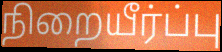
நிறையீர்ப்பு